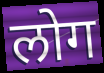
लोग